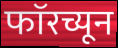
फॉरच्यून